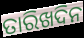
ତାରିଖଦିନ